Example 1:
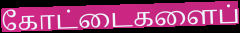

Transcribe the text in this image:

கோட்டைகளைப்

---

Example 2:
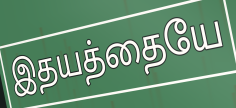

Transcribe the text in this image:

இதயத்தையே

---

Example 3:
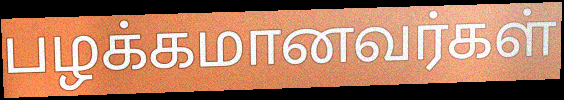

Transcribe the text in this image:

பழக்கமானவர்கள்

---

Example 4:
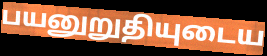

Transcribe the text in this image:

பயனுறுதியுடைய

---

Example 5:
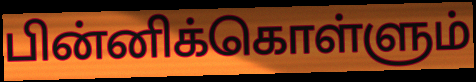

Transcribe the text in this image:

பின்னிக்கொள்ளும்